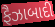
ફૈઝાબાદી